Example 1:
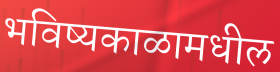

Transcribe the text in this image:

भविष्यकाळामधील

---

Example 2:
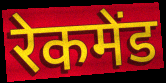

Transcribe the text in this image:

रेकमेंड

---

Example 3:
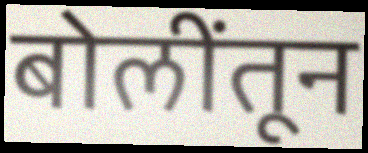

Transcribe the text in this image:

बोलींतून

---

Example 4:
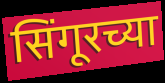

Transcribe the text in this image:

सिंगूरच्या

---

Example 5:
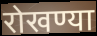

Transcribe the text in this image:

रोखण्या